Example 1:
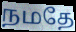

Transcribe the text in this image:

நமதே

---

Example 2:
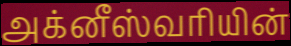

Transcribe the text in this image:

அக்னீஸ்வரியின்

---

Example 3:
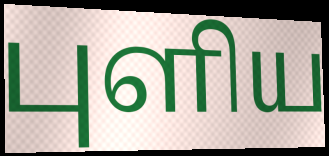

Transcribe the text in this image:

புளிய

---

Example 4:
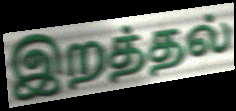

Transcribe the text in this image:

இறத்தல்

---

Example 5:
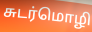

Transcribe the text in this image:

சுடர்மொழி